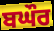
ਬਘੌਰ